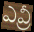
ఎవ్రీ